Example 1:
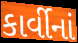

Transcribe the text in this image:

કાર્વીનાં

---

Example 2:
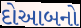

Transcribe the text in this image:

દોઆબનો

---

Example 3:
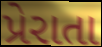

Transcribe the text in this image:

પ્રેરાતા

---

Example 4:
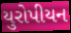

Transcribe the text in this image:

યુરોપીયન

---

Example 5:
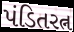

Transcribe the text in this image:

પંડિતરત્ન